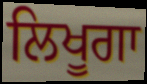
ਲਿਖੂਗਾ